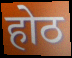
होठ